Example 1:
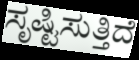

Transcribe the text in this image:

ಸೃಷ್ಟಿಸುತ್ತಿದೆ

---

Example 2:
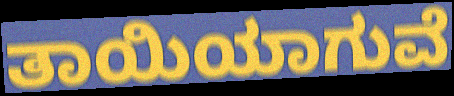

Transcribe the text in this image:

ತಾಯಿಯಾಗುವೆ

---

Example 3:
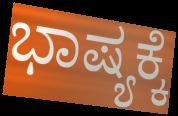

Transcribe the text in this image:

ಭಾಷ್ಯಕ್ಕೆ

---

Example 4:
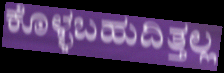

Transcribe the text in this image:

ಕೊಳ್ಳಬಹುದಿತ್ತಲ್ಲ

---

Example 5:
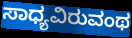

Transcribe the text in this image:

ಸಾಧ್ಯವಿರುವಂಥ